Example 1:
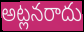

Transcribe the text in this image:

అట్లనరాదు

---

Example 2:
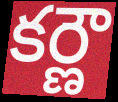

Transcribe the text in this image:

కర్ణౌ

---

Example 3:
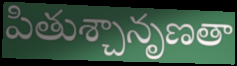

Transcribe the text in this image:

పితుశ్చానృణతా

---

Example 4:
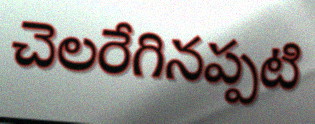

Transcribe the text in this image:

చెలరేగినప్పటి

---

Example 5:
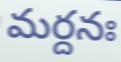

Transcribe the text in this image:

మర్దనః